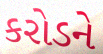
કરોડને